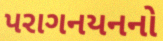
પરાગનયનનો